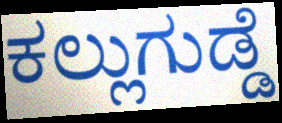
ಕಲ್ಲುಗುಡ್ಡೆ